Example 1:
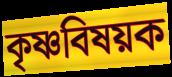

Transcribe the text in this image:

কৃষ্ণবিষয়ক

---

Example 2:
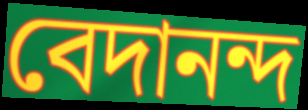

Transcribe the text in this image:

বেদানন্দ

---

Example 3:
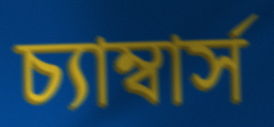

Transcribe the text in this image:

চ্যাম্বার্স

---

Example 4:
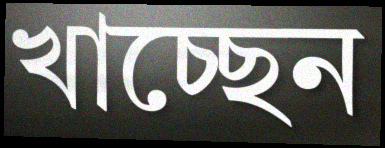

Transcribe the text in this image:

খাচ্ছেন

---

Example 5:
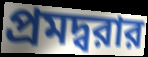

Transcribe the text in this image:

প্রমদ্বরার